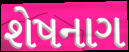
શેષનાગ